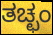
ತಚ್ಛಂ